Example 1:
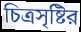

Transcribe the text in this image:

চিত্রসৃষ্টির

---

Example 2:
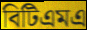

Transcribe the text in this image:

বিটিএমএ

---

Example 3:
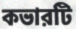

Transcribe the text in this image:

কভারটি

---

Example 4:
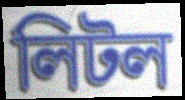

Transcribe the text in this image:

লিটল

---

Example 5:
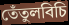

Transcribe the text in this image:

তেঁতুলবিচি